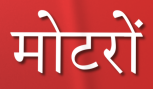
मोटरों